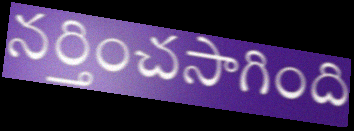
నర్తించసాగింది